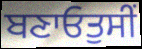
ਬਣਾਓਤੁਸੀਂ